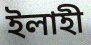
ইলাহী